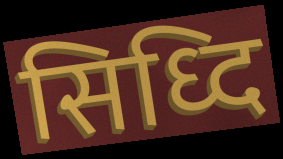
सिध्दि